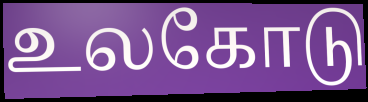
உலகோடு